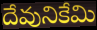
దేవునికేమి